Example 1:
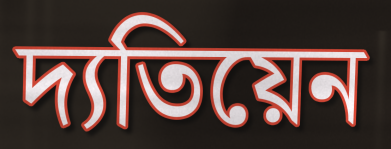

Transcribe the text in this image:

দ্যতিয়েন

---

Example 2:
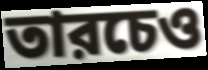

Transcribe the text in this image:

তারচেও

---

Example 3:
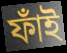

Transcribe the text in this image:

ফাঁই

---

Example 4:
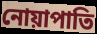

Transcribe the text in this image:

নোয়াপাতি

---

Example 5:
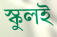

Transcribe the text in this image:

স্কুলই